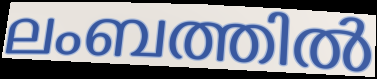
ലംബത്തിൽ